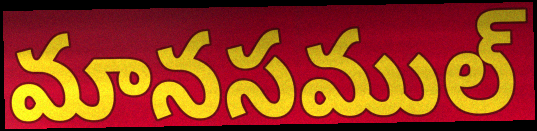
మానసముల్